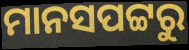
ମାନସପଟ୍ଟରୁ